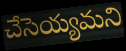
చేసెయ్యమని